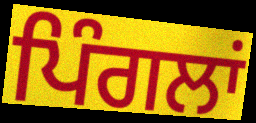
ਪਿੰਗਲਾਂ